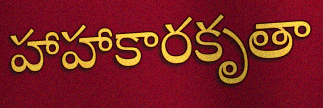
హాహాకారకృతా